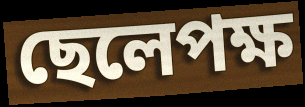
ছেলেপক্ষ